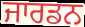
ਜਾਰਡਨ